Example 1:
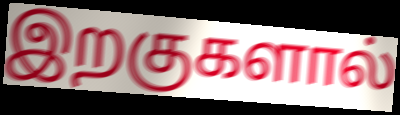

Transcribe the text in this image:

இறகுகளால்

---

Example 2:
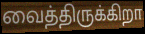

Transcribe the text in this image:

வைத்திருக்கிறா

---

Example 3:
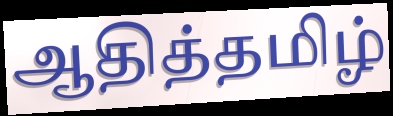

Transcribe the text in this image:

ஆதித்தமிழ்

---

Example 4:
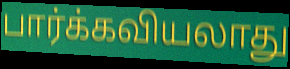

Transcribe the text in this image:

பார்க்கவியலாது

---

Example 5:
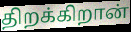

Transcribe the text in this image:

திறக்கிறான்